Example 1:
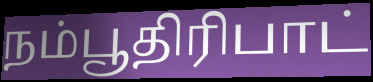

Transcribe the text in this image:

நம்பூதிரிபாட்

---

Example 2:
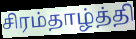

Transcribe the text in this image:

சிரம்தாழ்த்தி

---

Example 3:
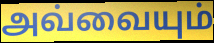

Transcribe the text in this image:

அவ்வையும்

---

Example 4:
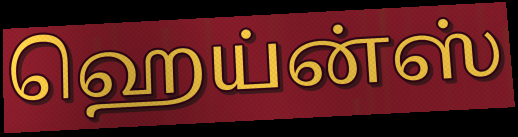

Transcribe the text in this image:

ஹெய்ன்ஸ்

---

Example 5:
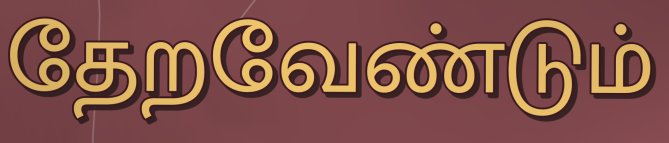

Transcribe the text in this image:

தேறவேண்டும்